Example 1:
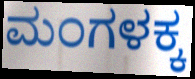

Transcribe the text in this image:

ಮಂಗಳಕ್ಕ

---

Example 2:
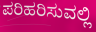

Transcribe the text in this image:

ಪರಿಹರಿಸುವಲ್ಲಿ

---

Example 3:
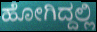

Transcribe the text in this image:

ಹೋಗಿದ್ದಲ್ಲಿ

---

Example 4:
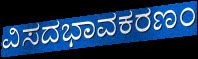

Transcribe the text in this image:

ವಿಸದಭಾವಕರಣಂ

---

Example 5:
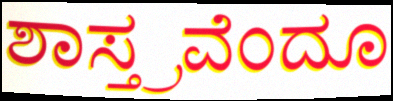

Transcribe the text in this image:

ಶಾಸ್ತ್ರವೆಂದೂ